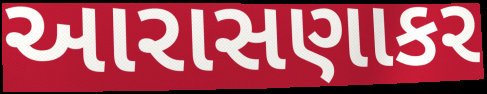
આરાસણાકર